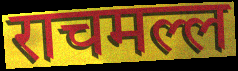
राचमल्ल